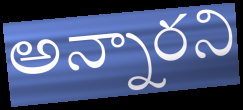
అన్నారని